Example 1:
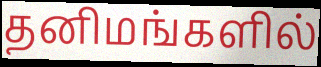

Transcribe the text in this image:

தனிமங்களில்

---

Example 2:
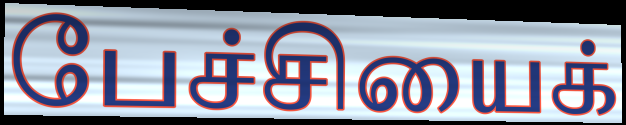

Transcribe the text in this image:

பேச்சியைக்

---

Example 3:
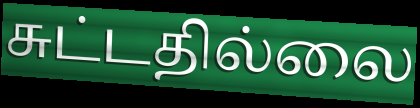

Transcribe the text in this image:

சுட்டதில்லை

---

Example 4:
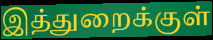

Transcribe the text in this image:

இத்துறைக்குள்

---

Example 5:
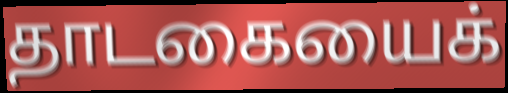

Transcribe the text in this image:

தாடகையைக்